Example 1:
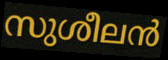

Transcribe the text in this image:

സുശീലൻ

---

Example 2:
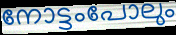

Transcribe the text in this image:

നോട്ടംപോലും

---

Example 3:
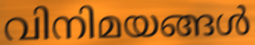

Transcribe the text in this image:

വിനിമയങ്ങൾ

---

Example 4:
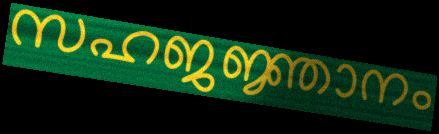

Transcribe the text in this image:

സഹജജ്ഞാനം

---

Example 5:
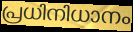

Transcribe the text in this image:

പ്രധിനിധാനം